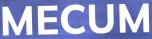
MECUM